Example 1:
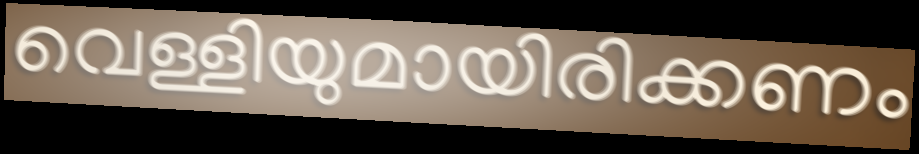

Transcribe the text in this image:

വെള്ളിയുമായിരിക്കണം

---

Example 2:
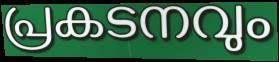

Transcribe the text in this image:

പ്രകടനവും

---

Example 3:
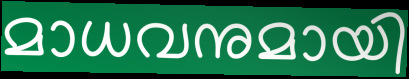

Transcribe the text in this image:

മാധവനുമായി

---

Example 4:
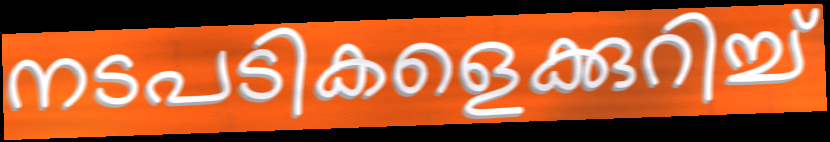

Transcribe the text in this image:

നടപടികളെക്കുറിച്ച്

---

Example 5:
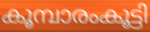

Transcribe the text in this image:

കൂമ്പാരംകൂട്ടി